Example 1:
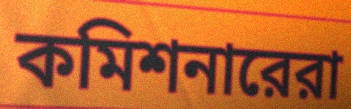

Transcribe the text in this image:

কমিশনারেরা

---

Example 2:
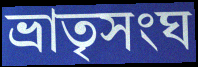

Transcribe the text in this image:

ভ্রাতৃসংঘ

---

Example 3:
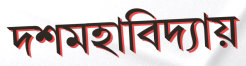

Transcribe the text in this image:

দশমহাবিদ্যায়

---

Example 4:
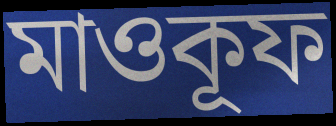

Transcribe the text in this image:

মাওকূফ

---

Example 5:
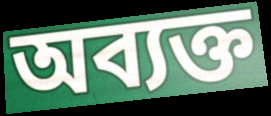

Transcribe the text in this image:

অব্যক্ত